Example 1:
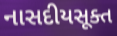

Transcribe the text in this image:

નાસદીયસૂક્ત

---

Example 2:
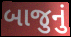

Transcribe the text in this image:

બાજુનું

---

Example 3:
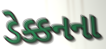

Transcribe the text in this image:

ડેક્કનના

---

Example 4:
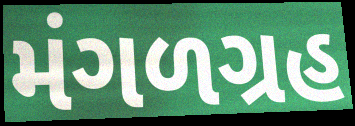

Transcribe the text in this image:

મંગળગ્રહ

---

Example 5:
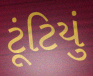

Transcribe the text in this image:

ટૂંટિયું